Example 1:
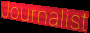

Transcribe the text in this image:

Journalist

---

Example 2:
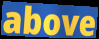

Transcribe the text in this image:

above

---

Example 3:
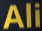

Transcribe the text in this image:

Ali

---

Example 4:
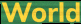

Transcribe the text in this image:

World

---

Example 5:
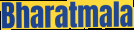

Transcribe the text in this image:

Bharatmala